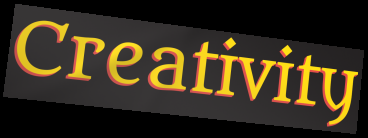
Creativity